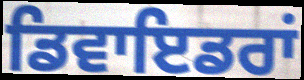
ਡਿਵਾਇਡਰਾਂ